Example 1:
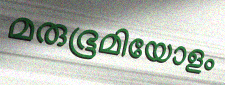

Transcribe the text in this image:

മരുഭൂമിയോളം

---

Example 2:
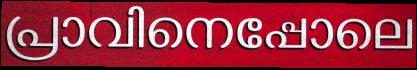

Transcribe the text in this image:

പ്രാവിനെപ്പോലെ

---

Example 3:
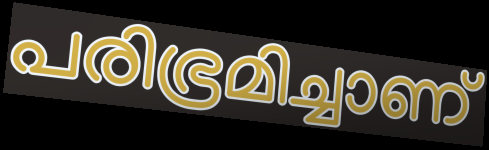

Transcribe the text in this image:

പരിഭ്രമിച്ചാണ്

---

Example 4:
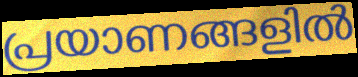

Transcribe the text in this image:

പ്രയാണങ്ങളിൽ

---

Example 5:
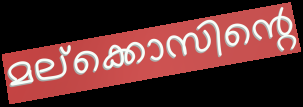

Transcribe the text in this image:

മല്ക്കൊസിന്റെ